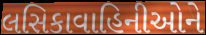
લસિકાવાહિનીઓને